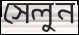
সেলুন